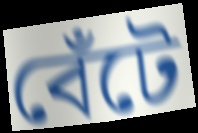
বেঁটে